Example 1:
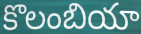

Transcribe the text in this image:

కొలంబియా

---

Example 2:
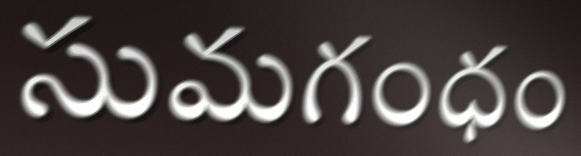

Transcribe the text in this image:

సుమగంధం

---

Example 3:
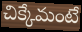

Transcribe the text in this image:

చిక్కేమంటే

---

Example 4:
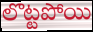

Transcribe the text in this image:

లొట్టపోయి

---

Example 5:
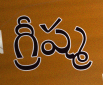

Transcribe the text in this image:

గ్రీష్మ